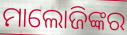
ମାଲୋଜିଙ୍କର